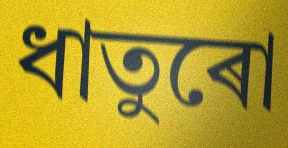
ধাতুৰো